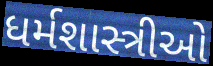
ધર્મશાસ્ત્રીઓ